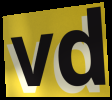
vd